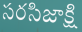
సరసిజాక్షి